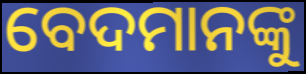
ବେଦମାନଙ୍କୁ